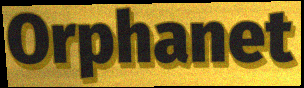
Orphanet